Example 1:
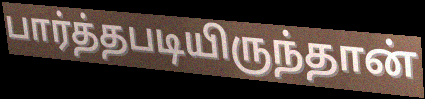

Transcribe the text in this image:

பார்த்தபடியிருந்தான்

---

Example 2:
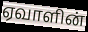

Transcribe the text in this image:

ஏவாளின்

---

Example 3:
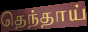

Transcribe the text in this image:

தெந்தாய்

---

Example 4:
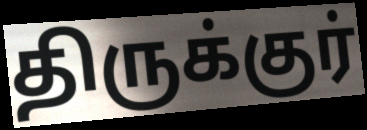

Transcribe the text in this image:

திருக்குர்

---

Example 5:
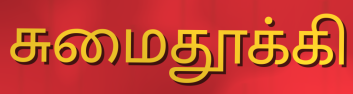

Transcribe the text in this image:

சுமைதூக்கி